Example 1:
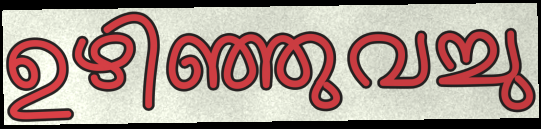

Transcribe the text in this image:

ഉഴിഞ്ഞുവച്ചു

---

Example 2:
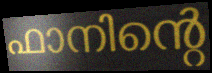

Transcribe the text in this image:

ഫാനിന്റെ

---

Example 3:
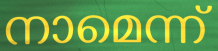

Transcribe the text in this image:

നാമെന്ന്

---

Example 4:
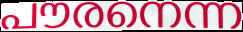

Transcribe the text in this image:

പൗരനെന്ന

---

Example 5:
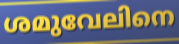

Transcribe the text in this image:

ശമുവേലിനെ